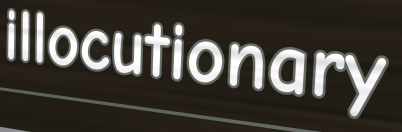
illocutionary